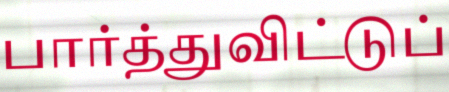
பார்த்துவிட்டுப்